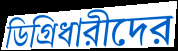
ডিগ্রিধারীদের